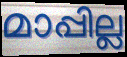
മാപ്പില്ല